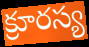
క్రూరస్య